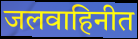
जलवाहिनीत